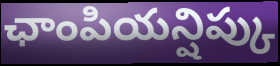
ఛాంపియన్షిప్కు